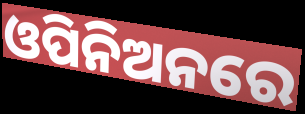
ଓପିନିଅନରେ